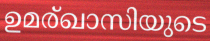
ഉമര്ഖാസിയുടെ